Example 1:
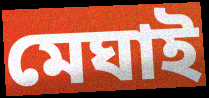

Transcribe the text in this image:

মেঘাই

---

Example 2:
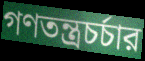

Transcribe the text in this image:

গণতন্ত্রচর্চার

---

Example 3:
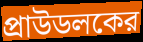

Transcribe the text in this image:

প্রাউডলকের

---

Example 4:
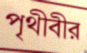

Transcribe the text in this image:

পৃথীবীর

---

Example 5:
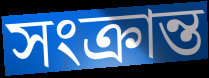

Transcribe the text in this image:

সংক্রান্ত